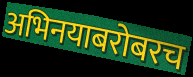
अभिनयाबरोबरच